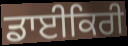
ਡਾਈਕਿਰੀ